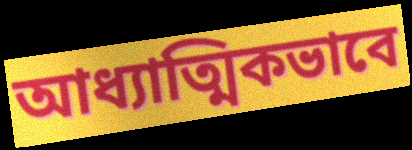
আধ্যাত্মিকভাবে